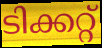
ടിക്കറ്റ്